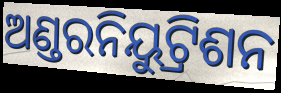
ଅଣ୍ଡରନିୟୁଟ୍ରିଶନ